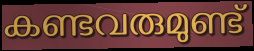
കണ്ടവരുമുണ്ട്